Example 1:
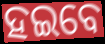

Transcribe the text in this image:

ହଇବେ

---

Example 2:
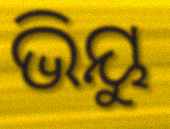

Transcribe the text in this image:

ଭିୟୁ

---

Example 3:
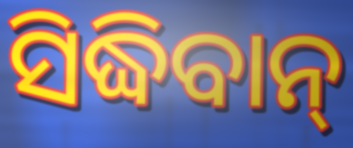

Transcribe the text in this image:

ସିଦ୍ଧିବାନ୍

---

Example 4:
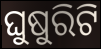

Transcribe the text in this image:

ଘୁଷୁରିଟି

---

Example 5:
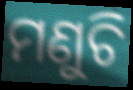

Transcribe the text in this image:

ମଣୁଚି